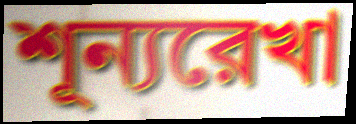
শূন্যরেখা